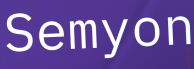
Semyon